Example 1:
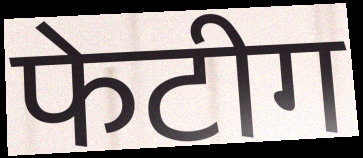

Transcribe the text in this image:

फेटीग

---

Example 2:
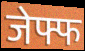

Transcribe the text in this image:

जेफ्फ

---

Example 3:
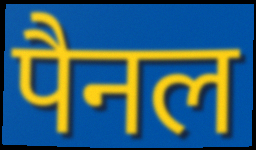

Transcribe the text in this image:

पैनल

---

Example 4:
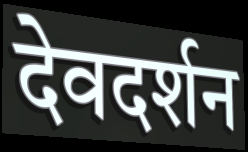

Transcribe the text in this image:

देवदर्शन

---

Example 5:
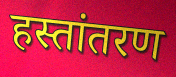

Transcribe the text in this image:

हस्तांतरण